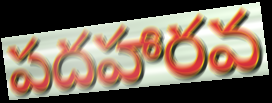
పదహారవ